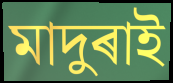
মাদুৰাই